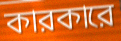
কারকারে